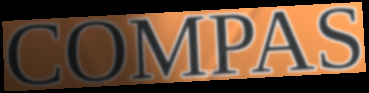
COMPAS